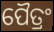
ପୈତ୍ରଂ